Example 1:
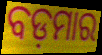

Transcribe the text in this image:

ବଡ଼ମାର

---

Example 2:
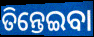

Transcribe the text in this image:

ତିନ୍ତେଇବା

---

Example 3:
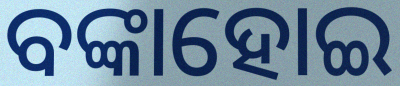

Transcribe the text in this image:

ବଙ୍କାହୋଇ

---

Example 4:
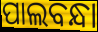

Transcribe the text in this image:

ପାଲବନ୍ଧା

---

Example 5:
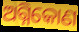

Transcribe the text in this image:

ଅଗ୍ନିକୋଣ